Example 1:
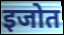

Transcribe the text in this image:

इजोत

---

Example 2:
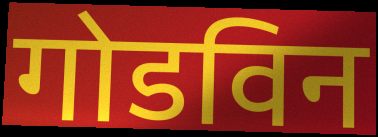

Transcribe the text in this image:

गोडविन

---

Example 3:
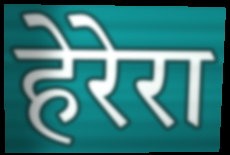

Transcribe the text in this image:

हेरेरा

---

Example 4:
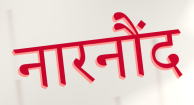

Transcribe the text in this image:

नारनौंद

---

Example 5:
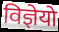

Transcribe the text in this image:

विज्ञेयो